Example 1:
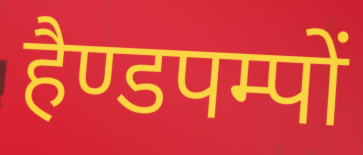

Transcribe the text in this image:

हैण्डपम्पों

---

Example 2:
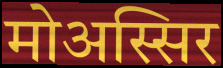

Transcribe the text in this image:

मोअस्सिर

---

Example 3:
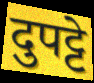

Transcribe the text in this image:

दुपट्टे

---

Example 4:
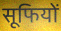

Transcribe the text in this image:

सूफियों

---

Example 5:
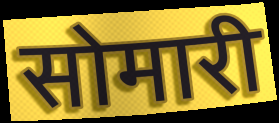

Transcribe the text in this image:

सोमारी